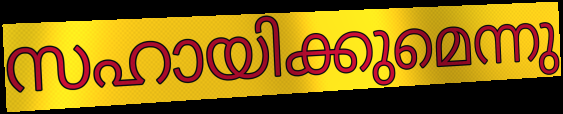
സഹായിക്കുമെന്നു